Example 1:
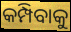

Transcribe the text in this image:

କମ୍ପିବାକୁ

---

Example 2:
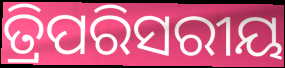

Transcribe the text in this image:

ତ୍ରିପରିସରୀୟ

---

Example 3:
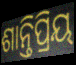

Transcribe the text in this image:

ଶାନ୍ତିପ୍ରିୟ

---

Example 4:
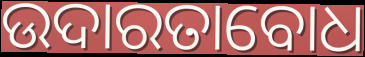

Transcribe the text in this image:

ଉଦାରତାବୋଧ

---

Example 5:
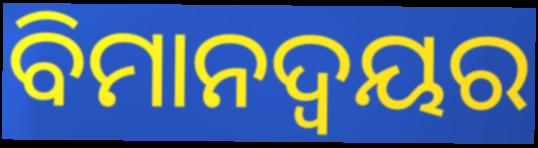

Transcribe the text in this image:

ବିମାନଦ୍ବୟର